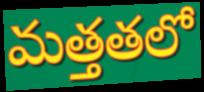
మత్తతలో